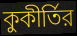
কুকীর্তির